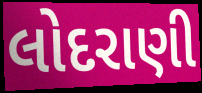
લોદરાણી